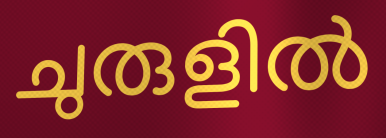
ചുരുളിൽ